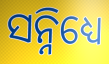
ସନ୍ନିଧ୍ୟେ